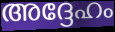
അദ്ദേഹം